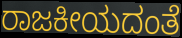
ರಾಜಕೀಯದಂತೆ